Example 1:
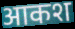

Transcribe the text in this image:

आकश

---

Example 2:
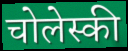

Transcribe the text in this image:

चोलेस्की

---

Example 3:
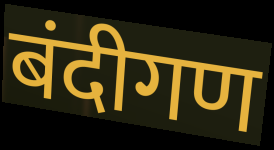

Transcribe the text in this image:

बंदीगण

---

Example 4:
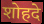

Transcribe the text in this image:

शोहदे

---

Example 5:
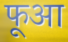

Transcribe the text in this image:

फूआ